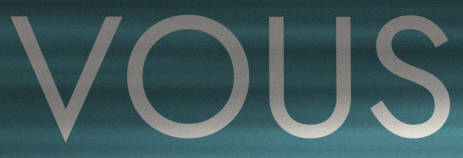
VOUS